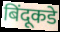
बिंदूकडे